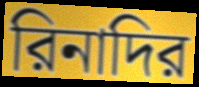
রিনাদির